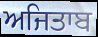
ਅਜਿਤਾਬ